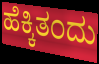
ಹೆಕ್ಕಿತಂದು